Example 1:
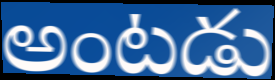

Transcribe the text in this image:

అంటడు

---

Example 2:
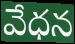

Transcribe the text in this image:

వేధన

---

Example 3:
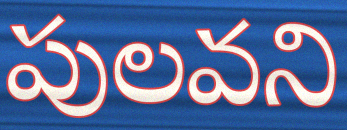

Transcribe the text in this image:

పులవని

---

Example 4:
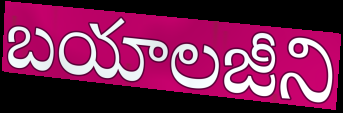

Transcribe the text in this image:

బయాలజీని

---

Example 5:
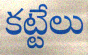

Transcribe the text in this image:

కట్టేలు